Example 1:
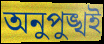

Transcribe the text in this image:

অনুপুঙ্খই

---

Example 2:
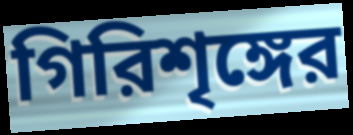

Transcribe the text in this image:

গিরিশৃঙ্গের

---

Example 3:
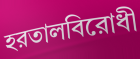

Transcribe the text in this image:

হরতালবিরোধী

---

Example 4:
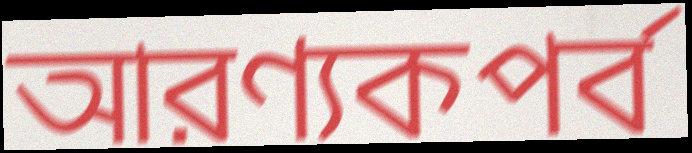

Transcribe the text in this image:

আরণ্যকপর্ব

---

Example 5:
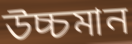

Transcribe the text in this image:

উচ্চমান